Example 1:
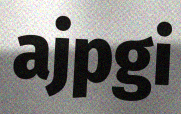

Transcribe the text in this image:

ajpgi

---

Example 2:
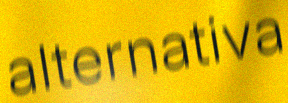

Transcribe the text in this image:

alternativa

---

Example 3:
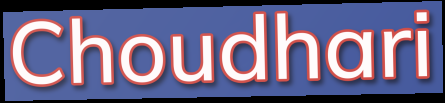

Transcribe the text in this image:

Choudhari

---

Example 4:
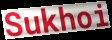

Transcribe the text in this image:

Sukhoi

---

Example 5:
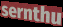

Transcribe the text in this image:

sernthu